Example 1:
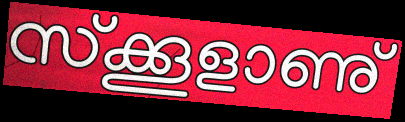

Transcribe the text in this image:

സ്ക്കൂളാണു്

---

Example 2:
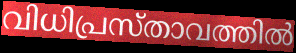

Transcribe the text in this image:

വിധിപ്രസ്താവത്തിൽ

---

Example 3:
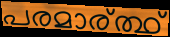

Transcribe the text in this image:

പരമാര്ത്ഥ്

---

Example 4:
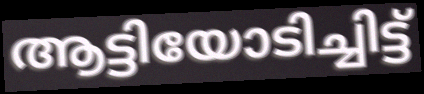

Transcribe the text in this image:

ആട്ടിയോടിച്ചിട്ട്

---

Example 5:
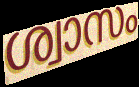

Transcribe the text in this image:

ശ്വാസം